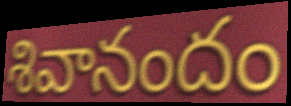
శివానందం